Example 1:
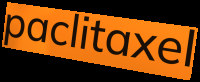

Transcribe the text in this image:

paclitaxel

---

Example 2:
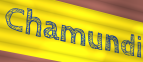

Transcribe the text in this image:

Chamundi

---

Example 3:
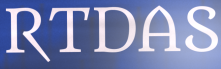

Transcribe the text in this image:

RTDAS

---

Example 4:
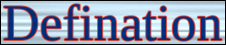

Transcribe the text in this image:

Defination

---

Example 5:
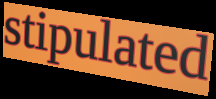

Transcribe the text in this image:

stipulated